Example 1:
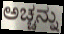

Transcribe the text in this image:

ಅಚ್ಚನ್ನು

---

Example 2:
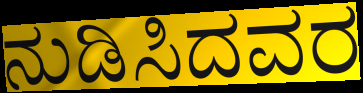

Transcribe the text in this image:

ನುಡಿಸಿದವರ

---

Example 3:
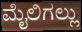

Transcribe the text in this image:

ಮೈಲಿಗಲ್ಲು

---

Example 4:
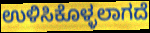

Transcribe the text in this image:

ಉಳಿಸಿಕೊಳ್ಳಲಾಗದೆ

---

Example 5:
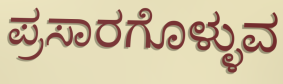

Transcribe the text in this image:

ಪ್ರಸಾರಗೊಳ್ಳುವ